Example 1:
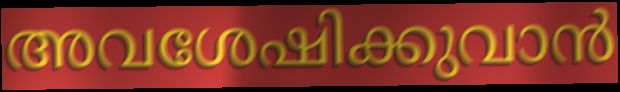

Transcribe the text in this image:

അവശേഷിക്കുവാൻ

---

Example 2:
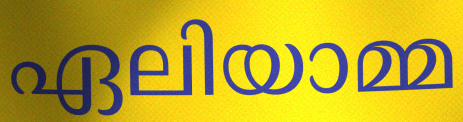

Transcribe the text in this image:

ഏലിയാമ്മ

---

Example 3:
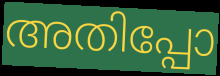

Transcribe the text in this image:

അതിപ്പോ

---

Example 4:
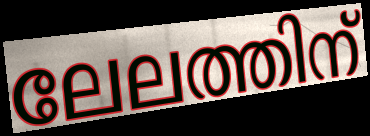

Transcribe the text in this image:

ലേലത്തിന്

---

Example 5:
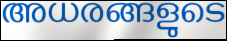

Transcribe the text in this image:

അധരങ്ങളുടെ